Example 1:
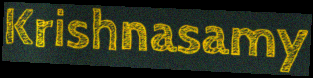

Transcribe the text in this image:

Krishnasamy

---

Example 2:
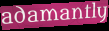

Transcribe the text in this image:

adamantly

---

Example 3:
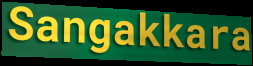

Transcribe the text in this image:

Sangakkara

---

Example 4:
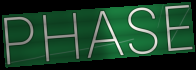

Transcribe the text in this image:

PHASE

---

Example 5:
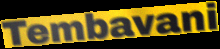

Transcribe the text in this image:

Tembavani